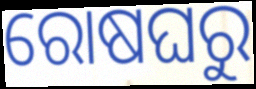
ରୋଷଘରୁ